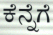
ಕೆನ್ನೆಗೆ